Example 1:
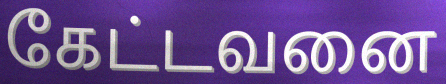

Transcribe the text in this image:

கேட்டவனை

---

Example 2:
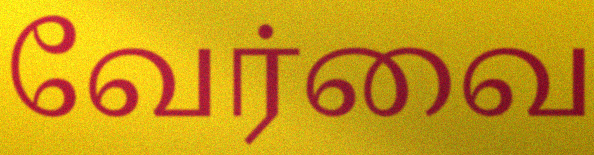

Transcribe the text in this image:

வேர்வை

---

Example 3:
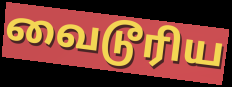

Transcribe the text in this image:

வைடூரிய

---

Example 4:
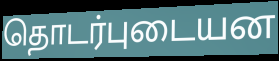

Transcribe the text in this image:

தொடர்புடையன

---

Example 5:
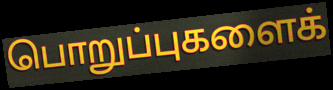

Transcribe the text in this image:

பொறுப்புகளைக்